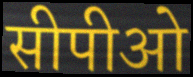
सीपीओ